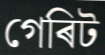
গেৰিট